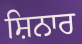
ਸ਼ਿਨਾਰ